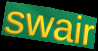
swair